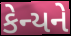
કેન્યને